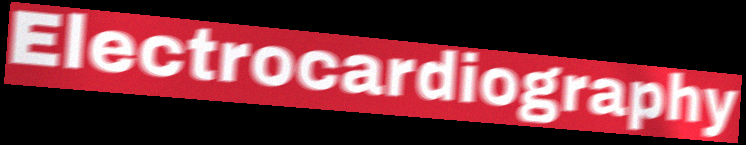
Electrocardiography